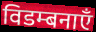
विडम्बनाएँ